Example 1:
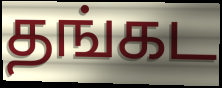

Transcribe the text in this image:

தங்கட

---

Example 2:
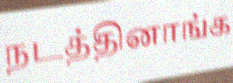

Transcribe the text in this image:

நடத்தினாங்க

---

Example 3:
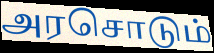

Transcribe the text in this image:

அரசொடும்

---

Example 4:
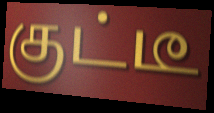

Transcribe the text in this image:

குட்டீ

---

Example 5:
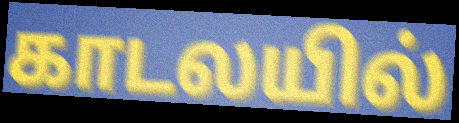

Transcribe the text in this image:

காடலயில்